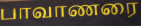
பாவாணரை